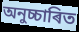
অনুচ্চাৰিত